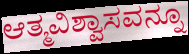
ಆತ್ಮವಿಶ್ವಾಸವನ್ನೂ